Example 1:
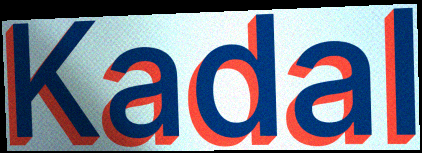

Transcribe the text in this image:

Kadal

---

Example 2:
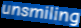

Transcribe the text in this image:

unsmiling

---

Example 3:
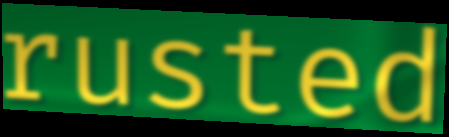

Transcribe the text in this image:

rusted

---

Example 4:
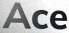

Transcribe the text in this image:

Ace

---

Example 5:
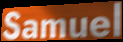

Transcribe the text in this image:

Samuel